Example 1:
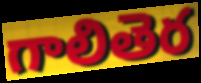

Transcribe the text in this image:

గాలితెర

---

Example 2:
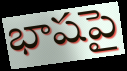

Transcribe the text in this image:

భాషపై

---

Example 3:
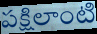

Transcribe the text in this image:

పక్షిలాంటి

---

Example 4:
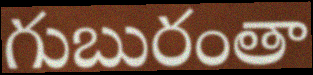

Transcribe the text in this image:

గుబురంతా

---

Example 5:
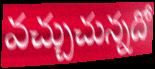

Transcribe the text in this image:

వచ్చుచున్నదో